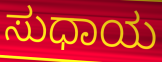
ಸುಧಾಯ